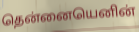
தென்னையெனின்